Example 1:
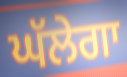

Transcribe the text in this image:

ਘੱਲੇਗਾ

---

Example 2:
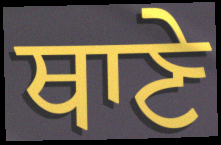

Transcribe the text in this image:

ਥਾਣੇ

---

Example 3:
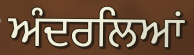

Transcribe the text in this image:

ਅੰਦਰਲਿਆਂ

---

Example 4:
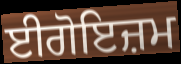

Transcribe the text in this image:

ਈਗੋਇਜ਼ਮ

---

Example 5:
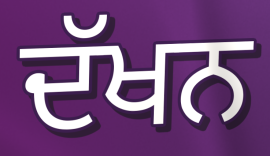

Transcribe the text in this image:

ਦੱਖਨ